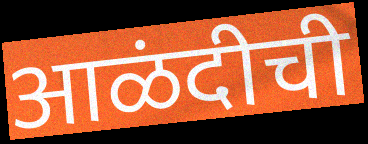
आळंदीची